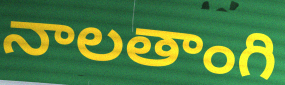
నాలతాంగి